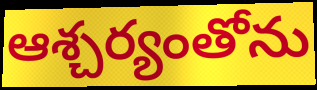
ఆశ్చర్యంతోను